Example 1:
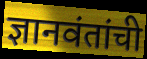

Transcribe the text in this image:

ज्ञानवंतांची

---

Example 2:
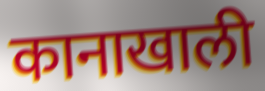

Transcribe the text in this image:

कानाखाली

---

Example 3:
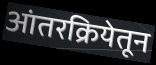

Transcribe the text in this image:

आंतरक्रियेतून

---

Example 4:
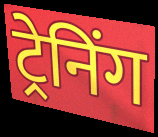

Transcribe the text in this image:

ट्रेनिंग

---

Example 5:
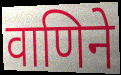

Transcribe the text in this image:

वाणिने